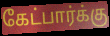
கேட்பார்க்கு